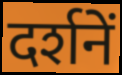
दर्शनें